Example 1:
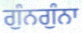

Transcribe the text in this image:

ਗੁੰਨਗੁੰਨਾ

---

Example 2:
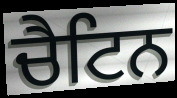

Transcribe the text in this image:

ਚੈਟਿਨ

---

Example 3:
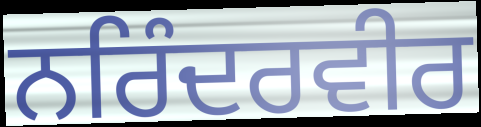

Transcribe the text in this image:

ਨਰਿੰਦਰਵੀਰ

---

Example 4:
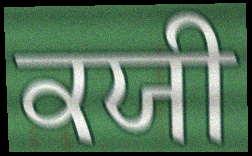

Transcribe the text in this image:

ਕਯੀ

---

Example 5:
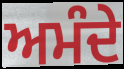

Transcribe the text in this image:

ਅਮੰਦੇ